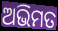
ଅଭିମତ